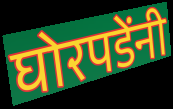
घोरपडेंनी